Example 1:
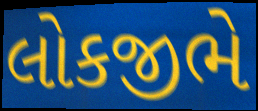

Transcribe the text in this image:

લોકજીભે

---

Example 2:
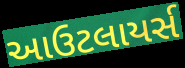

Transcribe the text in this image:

આઉટલાયર્સ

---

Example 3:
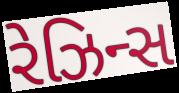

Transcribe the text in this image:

રેઝિન્સ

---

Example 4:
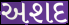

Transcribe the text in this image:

અશદ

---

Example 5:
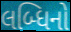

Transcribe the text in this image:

લબ્ધિનો